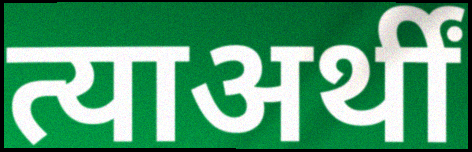
त्याअर्थीं